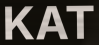
KAT